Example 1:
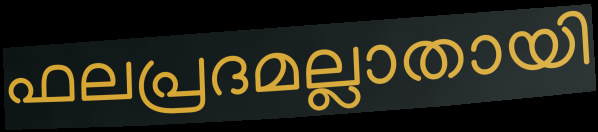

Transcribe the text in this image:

ഫലപ്രദമല്ലാതായി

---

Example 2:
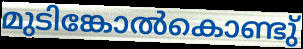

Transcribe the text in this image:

മുടിങ്കോൽകൊണ്ടു്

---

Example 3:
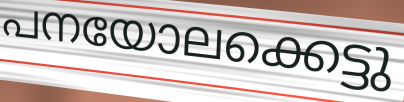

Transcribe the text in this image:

പനയോലക്കെട്ടു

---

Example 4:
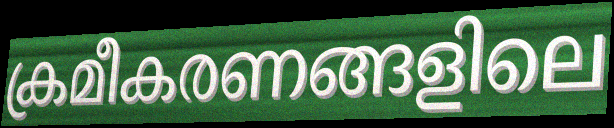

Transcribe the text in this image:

ക്രമീകരണങ്ങളിലെ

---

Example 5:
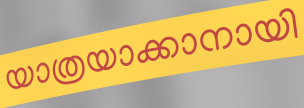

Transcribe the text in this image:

യാത്രയാക്കാനായി